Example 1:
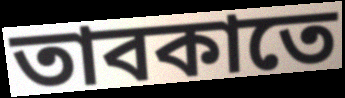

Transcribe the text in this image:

তাবকাতে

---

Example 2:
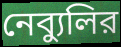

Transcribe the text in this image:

নেব্যুলির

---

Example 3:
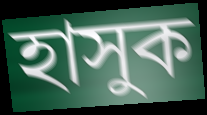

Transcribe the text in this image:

হাসুক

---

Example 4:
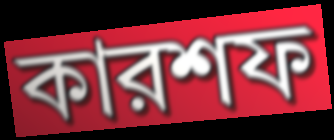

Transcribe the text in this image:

কারশফ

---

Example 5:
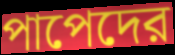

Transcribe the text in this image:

পাপেদের